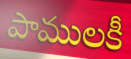
పాములకీ